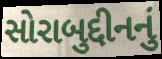
સોરાબુદ્દીનનું